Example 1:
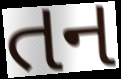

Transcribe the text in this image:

તન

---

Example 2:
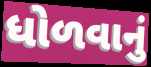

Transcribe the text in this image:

ધોળવાનું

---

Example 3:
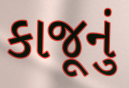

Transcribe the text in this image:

કાજૂનું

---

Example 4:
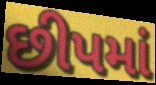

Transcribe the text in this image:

છીપમાં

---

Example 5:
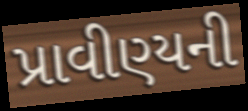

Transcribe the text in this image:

પ્રાવીણ્યની